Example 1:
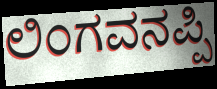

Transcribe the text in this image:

ಲಿಂಗವನಪ್ಪಿ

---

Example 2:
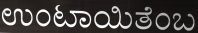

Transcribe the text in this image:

ಉಂಟಾಯಿತೆಂಬ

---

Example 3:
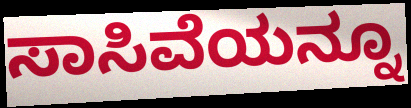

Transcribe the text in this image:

ಸಾಸಿವೆಯನ್ನೂ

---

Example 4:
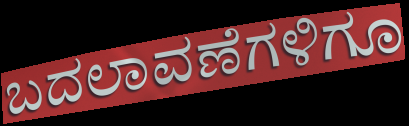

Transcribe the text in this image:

ಬದಲಾವಣೆಗಳಿಗೂ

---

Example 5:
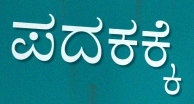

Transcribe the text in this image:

ಪದಕಕ್ಕೆ